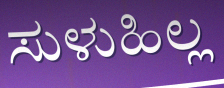
ಸುಳುಹಿಲ್ಲ